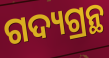
ଗଦ୍ୟଗ୍ରନ୍ଥ